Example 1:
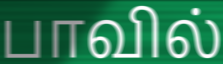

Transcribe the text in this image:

பாவில்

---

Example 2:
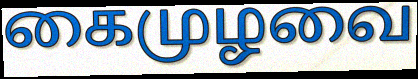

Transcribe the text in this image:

கைமுழவை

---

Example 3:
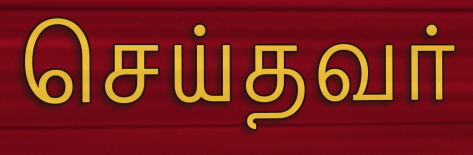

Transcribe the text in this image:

செய்தவர்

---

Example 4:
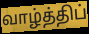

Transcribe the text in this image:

வாழ்த்திப்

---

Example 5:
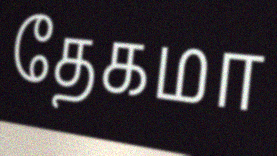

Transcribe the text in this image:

தேகமா